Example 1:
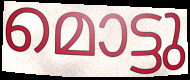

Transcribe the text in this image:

മൊട്ടു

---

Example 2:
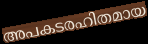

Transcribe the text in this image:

അപകടരഹിതമായ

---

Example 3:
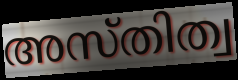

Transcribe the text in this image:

അസ്തിത്വ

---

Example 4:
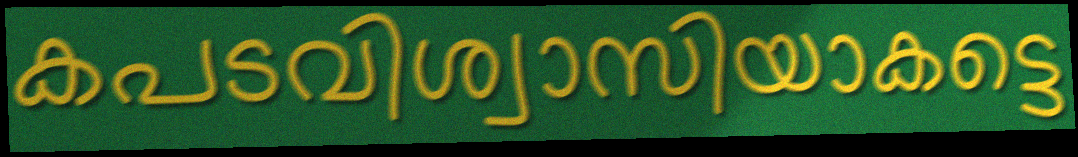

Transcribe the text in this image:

കപടവിശ്വാസിയാകട്ടെ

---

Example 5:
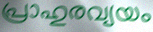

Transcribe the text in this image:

പ്രാഹുരവ്യയം